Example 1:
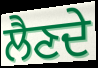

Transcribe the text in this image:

ਲੈਣਦੇ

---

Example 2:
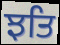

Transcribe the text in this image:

ਝਤਿ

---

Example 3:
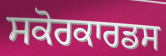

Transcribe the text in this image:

ਸਕੋਰਕਾਰਡਸ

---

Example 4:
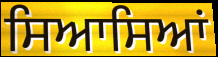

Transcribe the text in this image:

ਸਿਆਸਿਆਂ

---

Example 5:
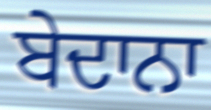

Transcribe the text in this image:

ਬੇਦਾਨਾ